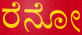
ರೆನೋ